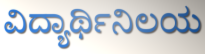
ವಿದ್ಯಾರ್ಥಿನಿಲಯ